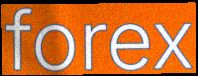
forex